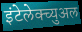
इंटेलेक्च्युअल